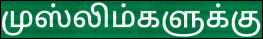
முஸ்லிம்களுக்கு